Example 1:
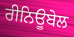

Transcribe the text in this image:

ਰੀਨਿਊਬੇਲ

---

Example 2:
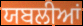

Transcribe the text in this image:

ਯਬਲੀਆਂ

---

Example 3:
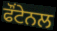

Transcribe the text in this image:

ਫੌਂਟੇਨਲ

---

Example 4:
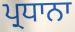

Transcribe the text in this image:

ਪ੍ਰਧਾਨਾ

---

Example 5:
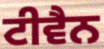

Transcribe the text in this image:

ਟੀਵੈਨ